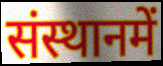
संस्थानमें